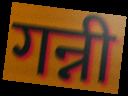
गन्नी